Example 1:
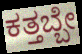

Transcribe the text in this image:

ಕತ್ತಬ್ಬೇ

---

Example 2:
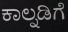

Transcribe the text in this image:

ಕಾಲ್ನಡಿಗೆ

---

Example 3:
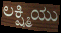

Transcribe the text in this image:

ಲಕ್ಷ್ಮಿಯು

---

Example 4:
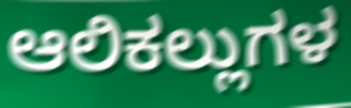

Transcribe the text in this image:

ಆಲಿಕಲ್ಲುಗಳ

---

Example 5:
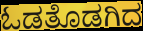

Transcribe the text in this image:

ಓಡತೊಡಗಿದ